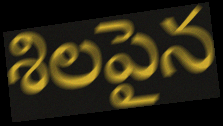
శిలపైన